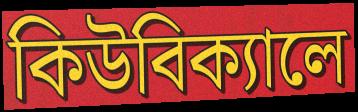
কিউবিক্যালে